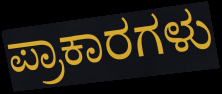
ಪ್ರಾಕಾರಗಳು